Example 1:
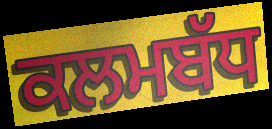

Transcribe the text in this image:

ਕਲਮਬੱਧ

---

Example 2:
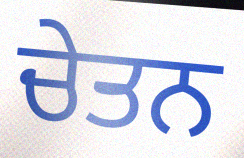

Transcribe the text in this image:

ਚੇਤਨ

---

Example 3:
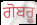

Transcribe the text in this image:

ਗੋਬਰੂ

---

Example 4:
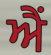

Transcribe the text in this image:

ਐੰ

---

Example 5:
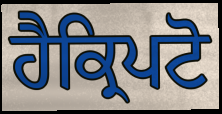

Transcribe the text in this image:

ਹੈਕ੍ਰਿਪਟੋ